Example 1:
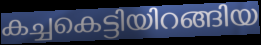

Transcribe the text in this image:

കച്ചകെട്ടിയിറങ്ങിയ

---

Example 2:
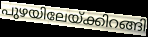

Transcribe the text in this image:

പുഴയിലേയ്ക്കിറങ്ങി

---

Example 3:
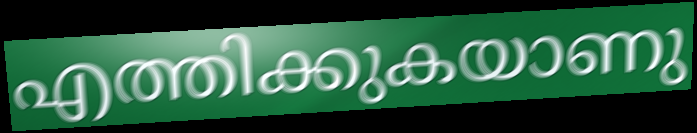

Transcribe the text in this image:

എത്തിക്കുകയാണു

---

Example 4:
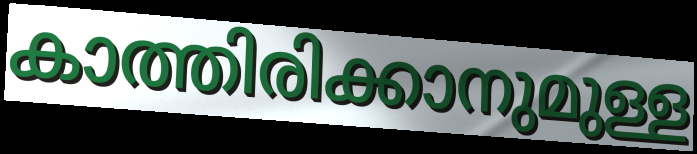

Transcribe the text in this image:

കാത്തിരിക്കാനുമുള്ള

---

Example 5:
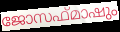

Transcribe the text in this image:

ജോസഫ്മാഷും